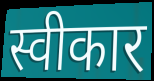
स्वीकार